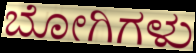
ಬೋಗಿಗಳು